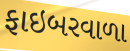
ફાઇબરવાળા